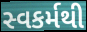
સ્વકર્મથી